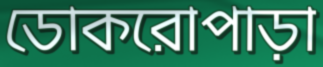
ডোকরোপাড়া